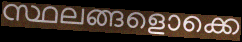
സ്ഥലങ്ങളൊക്കെ